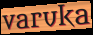
varuka